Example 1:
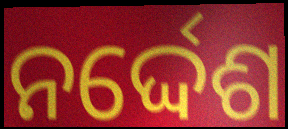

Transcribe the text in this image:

ନର୍ଦ୍ଦେଶ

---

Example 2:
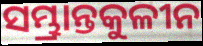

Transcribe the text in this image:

ସମ୍ଭ୍ରାନ୍ତକୁଳୀନ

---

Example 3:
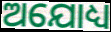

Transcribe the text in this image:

ଅଯୋଧ୍ୟ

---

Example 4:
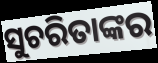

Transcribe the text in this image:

ସୁଚରିତାଙ୍କର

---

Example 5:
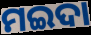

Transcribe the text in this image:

ମଇଦା